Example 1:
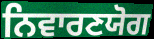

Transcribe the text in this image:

ਨਿਵਾਰਣਯੋਗ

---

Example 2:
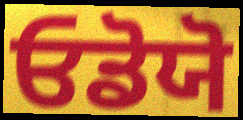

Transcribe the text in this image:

ਓਡੋਯੋ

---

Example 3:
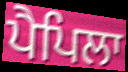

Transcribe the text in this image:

ਪੈਪਿਲਾ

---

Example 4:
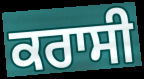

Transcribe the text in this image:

ਕਰਾਸੀ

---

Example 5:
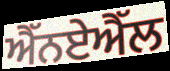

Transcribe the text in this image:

ਐੱਨਏਐੱਲ